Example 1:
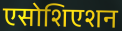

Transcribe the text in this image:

एसोशिएशन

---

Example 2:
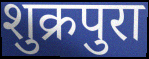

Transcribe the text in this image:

शुक्रपुरा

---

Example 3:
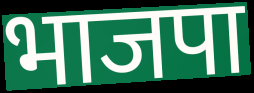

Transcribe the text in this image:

भाजपा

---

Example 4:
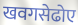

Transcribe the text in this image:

खवगसेढोए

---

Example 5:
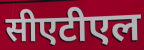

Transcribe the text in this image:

सीएटीएल